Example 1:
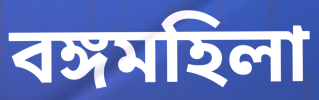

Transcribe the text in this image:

বঙ্গমহিলা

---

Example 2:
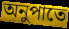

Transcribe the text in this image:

অনুপাতে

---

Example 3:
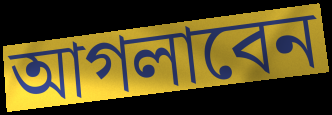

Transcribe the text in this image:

আগলাবেন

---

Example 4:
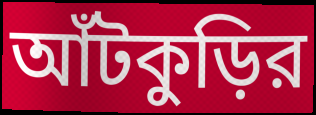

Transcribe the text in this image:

আঁটকুড়ির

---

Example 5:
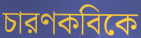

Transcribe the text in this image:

চারণকবিকে